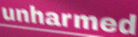
unharmed